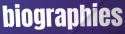
biographies